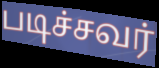
படிச்சவர்